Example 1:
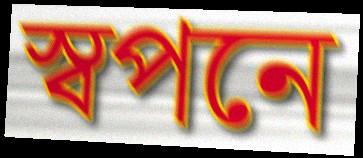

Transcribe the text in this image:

স্বপনে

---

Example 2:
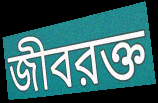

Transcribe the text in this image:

জীবরক্ত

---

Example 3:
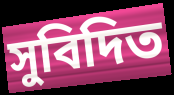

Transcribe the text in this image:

সুবিদিত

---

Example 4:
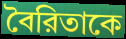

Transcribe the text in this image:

বৈরিতাকে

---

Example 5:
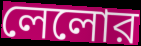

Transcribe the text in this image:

লেলোর